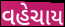
વહેચાય